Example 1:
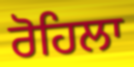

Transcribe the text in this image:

ਰੋਹਿਲਾ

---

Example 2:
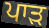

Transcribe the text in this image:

ਪਾੜ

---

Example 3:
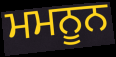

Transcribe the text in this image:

ਮਮਨੂਨ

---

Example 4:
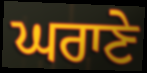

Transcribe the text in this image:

ਘਰਾਣੇ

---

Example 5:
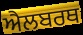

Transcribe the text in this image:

ਐਲਬਰਥ